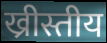
ख्रीस्तीय